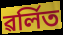
ৱৰ্লিত